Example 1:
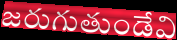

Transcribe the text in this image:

జరుగుతుండేవి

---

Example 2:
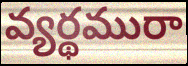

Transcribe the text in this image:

వ్యర్థమురా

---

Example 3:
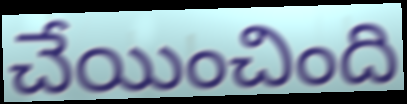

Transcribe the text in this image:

చేయించింది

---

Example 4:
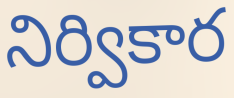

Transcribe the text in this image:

నిర్వికార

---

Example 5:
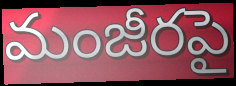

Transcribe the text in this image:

మంజీరపై